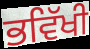
ਭਵਿੱਖੀ